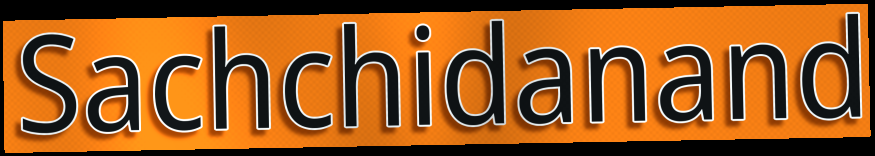
Sachchidanand